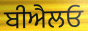
ਬੀਐਲਓ